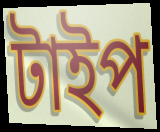
টাইপ